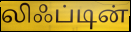
லிஃப்டின்